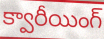
క్వారీయింగ్